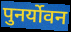
पुनर्योवन